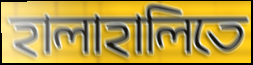
হালাহালিতে